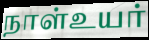
நாள்உயர்